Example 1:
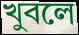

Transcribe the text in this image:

খুবলে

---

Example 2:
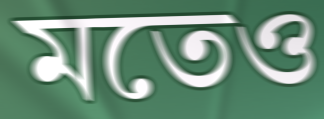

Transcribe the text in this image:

মতেও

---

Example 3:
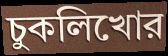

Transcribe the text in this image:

চুকলিখোর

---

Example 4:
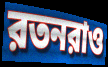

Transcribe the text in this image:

রতনরাও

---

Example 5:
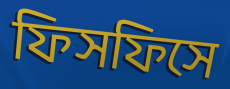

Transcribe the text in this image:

ফিসফিসে